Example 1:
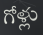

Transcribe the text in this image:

గోళ్లు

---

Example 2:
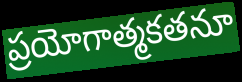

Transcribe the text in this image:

ప్రయోగాత్మకతనూ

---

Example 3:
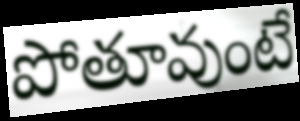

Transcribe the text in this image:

పోతూవుంటే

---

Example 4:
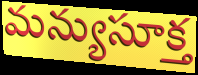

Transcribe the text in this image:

మన్యుసూక్త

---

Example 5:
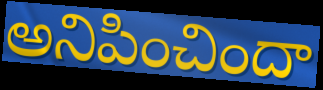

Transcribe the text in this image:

అనిపించిందా